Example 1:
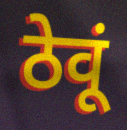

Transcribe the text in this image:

ठेवूं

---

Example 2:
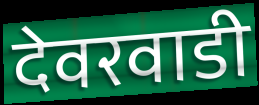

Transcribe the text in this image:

देवरवाडी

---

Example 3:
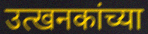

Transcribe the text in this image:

उत्खनकांच्या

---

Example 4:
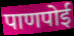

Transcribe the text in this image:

पाणपोई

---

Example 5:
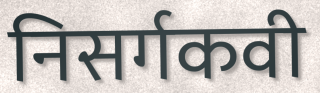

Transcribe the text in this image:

निसर्गकवी